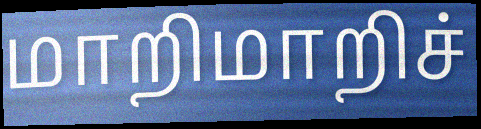
மாறிமாறிச்